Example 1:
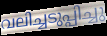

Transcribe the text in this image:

വലിച്ചടുപ്പിച്ചു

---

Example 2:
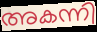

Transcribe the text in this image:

അകന്നി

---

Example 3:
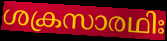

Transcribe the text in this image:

ശക്രസാരഥിഃ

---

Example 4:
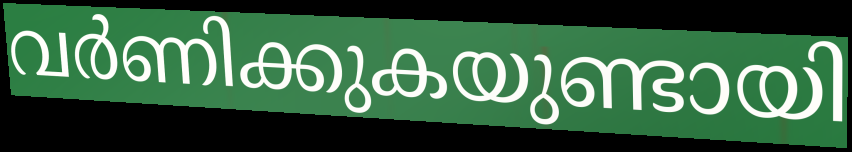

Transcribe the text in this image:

വർണിക്കുകയുണ്ടായി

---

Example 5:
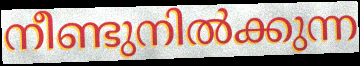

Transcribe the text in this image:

നീണ്ടുനിൽക്കുന്ന